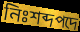
নিঃশব্দপদে